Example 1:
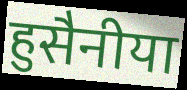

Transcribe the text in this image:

हुसैनीया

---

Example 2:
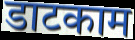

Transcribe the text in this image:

डाटकाम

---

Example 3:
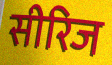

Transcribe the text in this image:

सीरिज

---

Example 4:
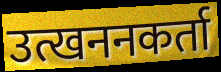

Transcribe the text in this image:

उत्खननकर्ता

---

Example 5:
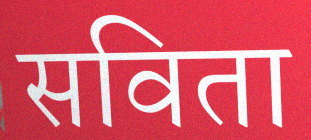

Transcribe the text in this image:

सविता